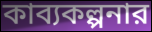
কাব্যকল্পনার